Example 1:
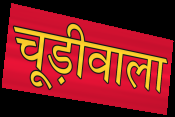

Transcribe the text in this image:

चूड़ीवाला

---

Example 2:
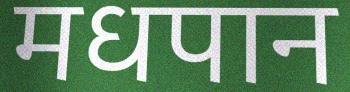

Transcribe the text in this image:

मधपान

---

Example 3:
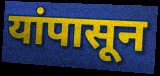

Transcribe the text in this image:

यांपासून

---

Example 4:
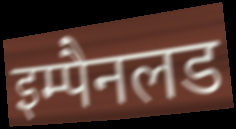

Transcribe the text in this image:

इम्पैनलड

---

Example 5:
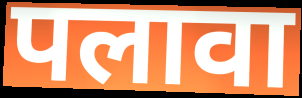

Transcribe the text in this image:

पलावा